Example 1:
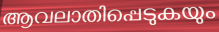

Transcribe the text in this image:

ആവലാതിപ്പെടുകയും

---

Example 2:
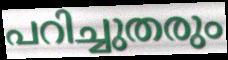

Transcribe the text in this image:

പറിച്ചുതരും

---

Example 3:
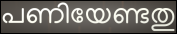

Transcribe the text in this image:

പണിയേണ്ടതു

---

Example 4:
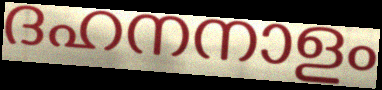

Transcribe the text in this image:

ദഹനനാളം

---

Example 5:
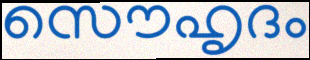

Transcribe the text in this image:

സൌഹൃദം